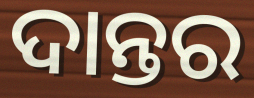
ଦାନ୍ତର